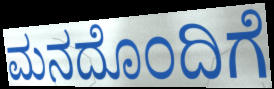
ಮನದೊಂದಿಗೆ